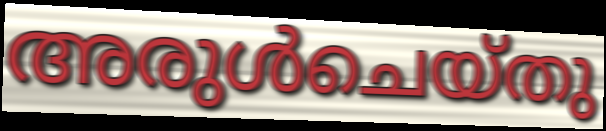
അരുൾചെയ്തു